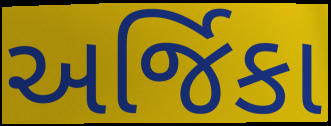
અર્જિકા